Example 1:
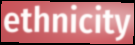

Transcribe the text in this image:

ethnicity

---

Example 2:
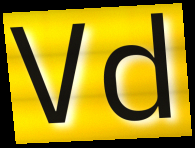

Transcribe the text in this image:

Vd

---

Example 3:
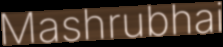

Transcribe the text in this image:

Mashrubhai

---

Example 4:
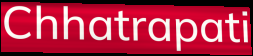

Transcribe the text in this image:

Chhatrapati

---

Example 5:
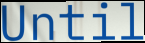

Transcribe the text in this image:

Until